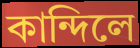
কান্দিলে